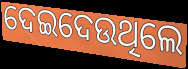
ଦେଇଦେଉଥିଲେ